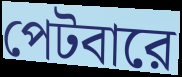
পেটবারে